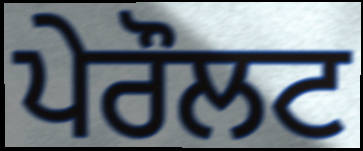
ਪੇਰੌਲਟ